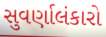
સુવર્ણાલંકારો